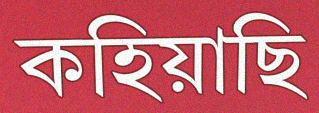
কহিয়াছি